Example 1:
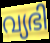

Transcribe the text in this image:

വ്യഭി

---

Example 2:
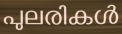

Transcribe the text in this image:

പുലരികൾ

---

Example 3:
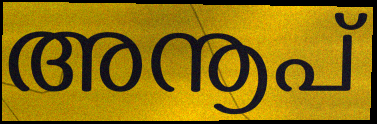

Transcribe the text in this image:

അനൂപ്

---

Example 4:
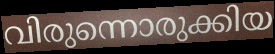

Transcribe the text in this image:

വിരുന്നൊരുക്കിയ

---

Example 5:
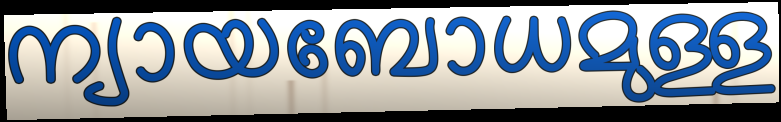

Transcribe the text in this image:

ന്യായബോധമുള്ള